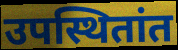
उपस्थितांत